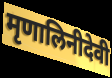
मृणालिनीदेवी